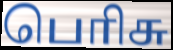
பெரிசு